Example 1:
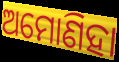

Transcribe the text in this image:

ଅମୋଣିହା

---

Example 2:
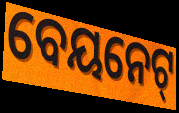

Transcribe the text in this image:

ବେୟନେଟ୍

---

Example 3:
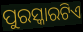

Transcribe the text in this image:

ପୁରସ୍କାରଟିଏ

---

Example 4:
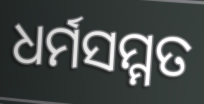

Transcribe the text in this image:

ଧର୍ମସମ୍ମତ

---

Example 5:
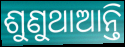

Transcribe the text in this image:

ଶୁଣୁଥାଆନ୍ତି